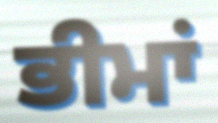
ਭੀਮਾਂ